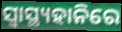
ସ୍ୱାସ୍ଥ୍ୟହାନିରେ